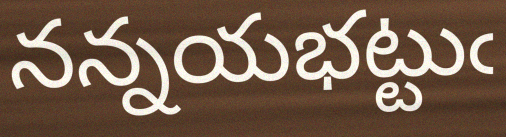
నన్నయభట్టుఁ